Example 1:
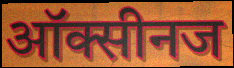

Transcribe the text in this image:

ऑक्सीनज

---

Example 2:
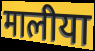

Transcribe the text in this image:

मालीया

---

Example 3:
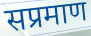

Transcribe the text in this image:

सप्रमाण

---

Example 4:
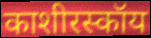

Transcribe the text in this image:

काशीरस्कॉय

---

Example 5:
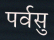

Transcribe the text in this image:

पर्वसु